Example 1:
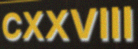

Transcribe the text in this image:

CXXVIII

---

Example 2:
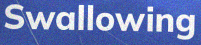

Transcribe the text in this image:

Swallowing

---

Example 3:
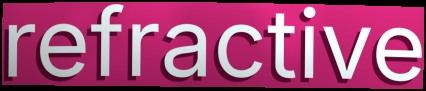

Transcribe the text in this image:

refractive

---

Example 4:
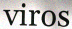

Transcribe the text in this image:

viros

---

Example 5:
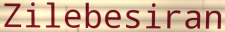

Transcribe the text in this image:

Zilebesiran